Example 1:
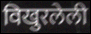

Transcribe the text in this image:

विखुरलेली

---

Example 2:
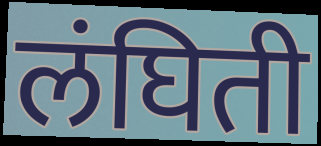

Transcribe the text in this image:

लंघिती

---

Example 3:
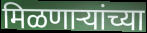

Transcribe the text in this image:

मिळणाऱ्यांच्या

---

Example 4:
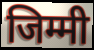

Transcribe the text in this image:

जिम्मी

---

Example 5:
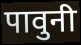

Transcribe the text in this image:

पावुनी